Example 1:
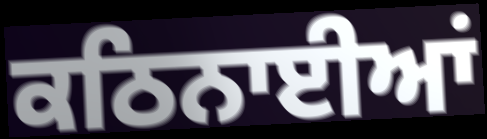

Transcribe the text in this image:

ਕਠਿਨਾਈਆਂ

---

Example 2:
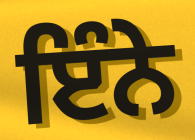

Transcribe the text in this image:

ਇੰਨੇ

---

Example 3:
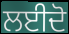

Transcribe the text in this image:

ਲਈਦੋ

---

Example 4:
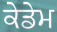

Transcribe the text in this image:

ਕੇਡੇਮ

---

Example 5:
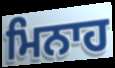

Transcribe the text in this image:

ਮਿਨਾਹ